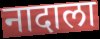
नादाला